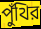
পুঁথির